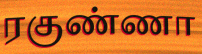
ரகுண்ணா